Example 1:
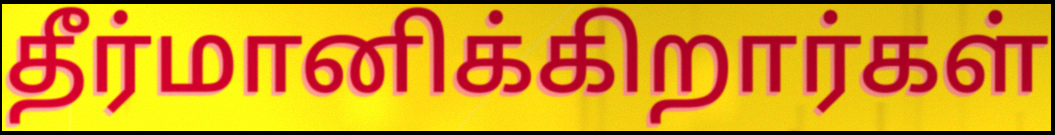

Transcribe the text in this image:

தீர்மானிக்கிறார்கள்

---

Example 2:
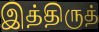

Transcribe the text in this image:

இத்திருத்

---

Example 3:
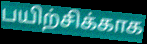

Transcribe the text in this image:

பயிற்சிக்காக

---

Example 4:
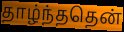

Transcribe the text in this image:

தாழ்ந்ததென்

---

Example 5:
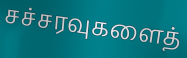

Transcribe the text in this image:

சச்சரவுகளைத்